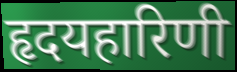
हृदयहारिणी